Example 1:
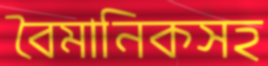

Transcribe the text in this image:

বৈমানিকসহ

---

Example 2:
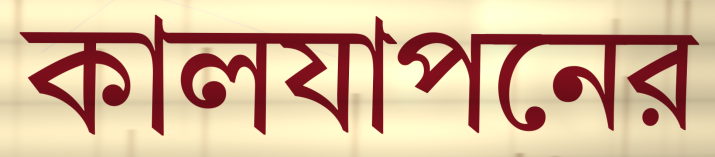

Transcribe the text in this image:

কালযাপনের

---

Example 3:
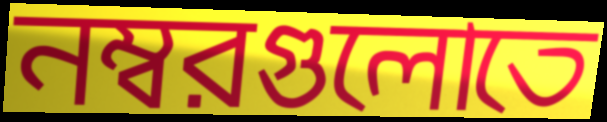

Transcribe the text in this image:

নম্বরগুলোতে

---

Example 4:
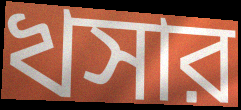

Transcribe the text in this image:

খসার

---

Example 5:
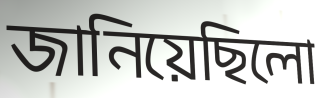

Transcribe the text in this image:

জানিয়েছিলো